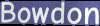
Bowdon